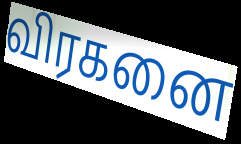
விரகனை